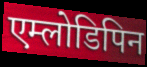
एम्लोडिपिन